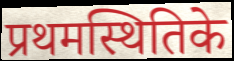
प्रथमस्थितिके